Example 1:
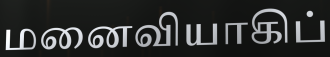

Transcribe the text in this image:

மனைவியாகிப்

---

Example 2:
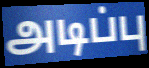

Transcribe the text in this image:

அடிப்பு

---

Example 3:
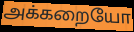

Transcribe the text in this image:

அக்கறையோ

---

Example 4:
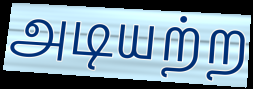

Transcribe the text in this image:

அடியற்ற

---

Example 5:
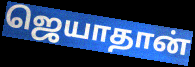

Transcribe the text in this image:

ஜெயாதான்